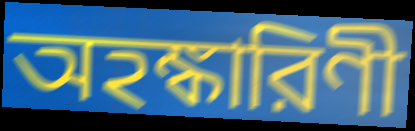
অহঙ্কারিণী